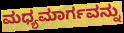
ಮಧ್ಯಮಾರ್ಗವನ್ನು